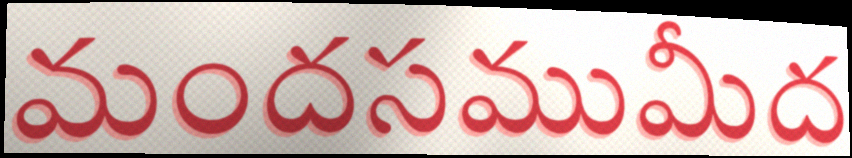
మందసముమీద